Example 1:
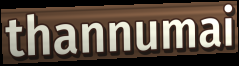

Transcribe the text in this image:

thannumai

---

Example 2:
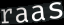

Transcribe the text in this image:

raas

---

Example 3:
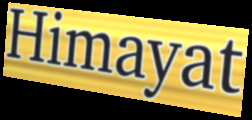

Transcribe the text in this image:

Himayat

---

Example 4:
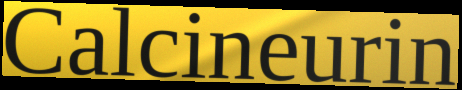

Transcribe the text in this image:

Calcineurin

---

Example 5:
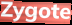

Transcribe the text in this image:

Zygote